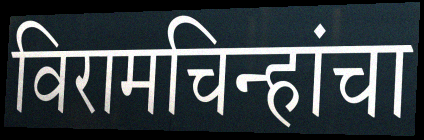
विरामचिन्हांचा